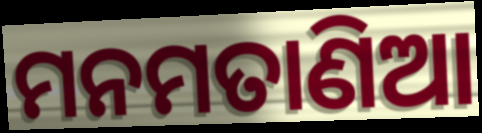
ମନମତାଣିଆ